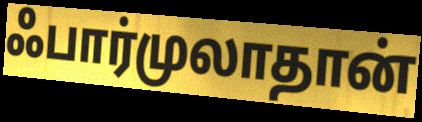
ஃபார்முலாதான்